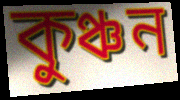
কুঞ্চন